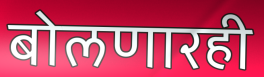
बोलणारही